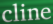
cline